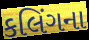
કલિંગના